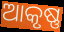
ଆକୃଷ୍ଣ